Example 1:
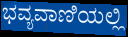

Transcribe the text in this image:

ಭವ್ಯವಾಣಿಯಲ್ಲಿ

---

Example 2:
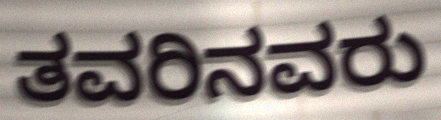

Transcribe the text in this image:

ತವರಿನವರು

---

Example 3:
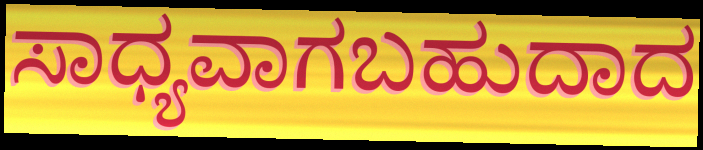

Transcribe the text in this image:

ಸಾಧ್ಯವಾಗಬಹುದಾದ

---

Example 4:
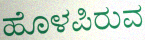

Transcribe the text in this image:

ಹೊಳಪಿರುವ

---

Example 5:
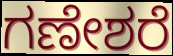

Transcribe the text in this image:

ಗಣೇಶರೆ